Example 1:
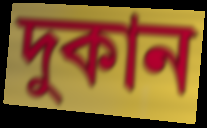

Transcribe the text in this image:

দুকান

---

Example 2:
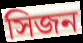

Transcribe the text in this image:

সিজন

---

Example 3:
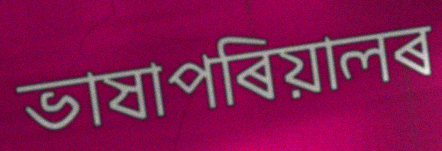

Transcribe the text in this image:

ভাষাপৰিয়ালৰ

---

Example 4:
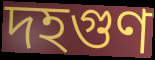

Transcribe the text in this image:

দহগুণ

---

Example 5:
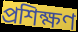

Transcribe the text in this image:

প্ৰশিক্ষণ